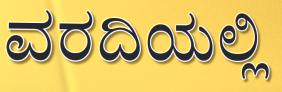
ವರದಿಯಲ್ಲಿ